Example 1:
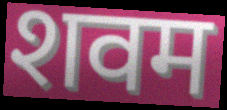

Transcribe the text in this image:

शवम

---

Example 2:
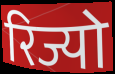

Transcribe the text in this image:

रिज्यो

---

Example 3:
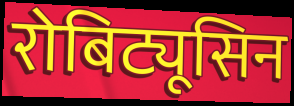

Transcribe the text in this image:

रोबिट्यूसिन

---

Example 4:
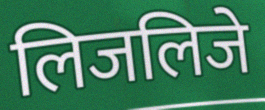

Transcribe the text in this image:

लिजलिजे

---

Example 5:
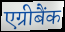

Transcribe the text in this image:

एग्रीबैंक